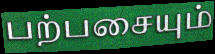
பற்பசையும்